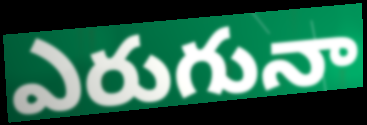
ఎరుగునా